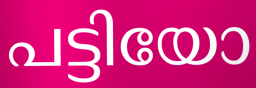
പട്ടിയോ